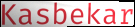
Kasbekar